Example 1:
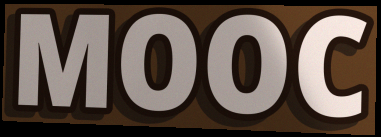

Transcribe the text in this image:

MOOC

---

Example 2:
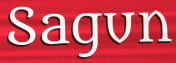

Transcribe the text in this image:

Sagun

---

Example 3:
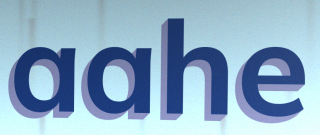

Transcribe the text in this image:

aahe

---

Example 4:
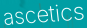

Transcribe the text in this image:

ascetics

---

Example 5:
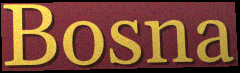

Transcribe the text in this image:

Bosna